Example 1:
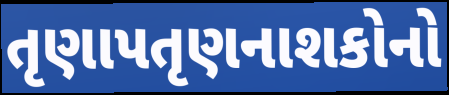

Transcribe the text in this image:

તૃણાપતૃણનાશકોનો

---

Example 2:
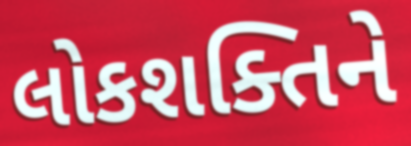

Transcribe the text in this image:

લોકશક્તિને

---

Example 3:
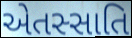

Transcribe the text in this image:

એતસ્સાતિ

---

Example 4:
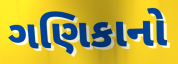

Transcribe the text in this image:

ગણિકાનો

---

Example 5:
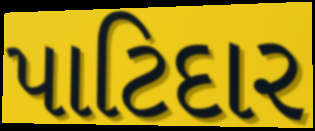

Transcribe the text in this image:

પાટિદાર